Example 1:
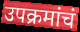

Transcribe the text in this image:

उपक्रमांचं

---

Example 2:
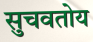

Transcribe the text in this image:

सुचवतोय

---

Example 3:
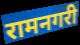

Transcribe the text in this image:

रामनगरी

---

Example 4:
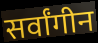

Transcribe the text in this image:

सर्वांगीन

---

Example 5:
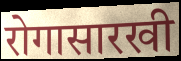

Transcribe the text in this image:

रोगासारखी